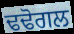
ਢਢੋਗਲ